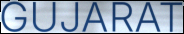
GUJARAT